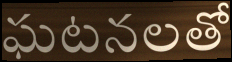
ఘటనలతో